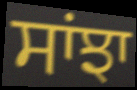
ਸਾਂਝਾ